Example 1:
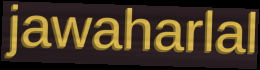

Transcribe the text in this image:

jawaharlal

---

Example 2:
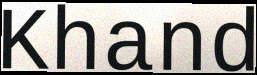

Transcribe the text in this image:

Khand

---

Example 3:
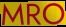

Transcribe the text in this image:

MRO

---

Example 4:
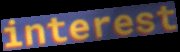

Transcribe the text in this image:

interest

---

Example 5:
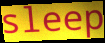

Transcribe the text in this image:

sleep